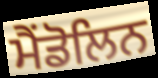
ਮੈਂਡੋਲਿਨ